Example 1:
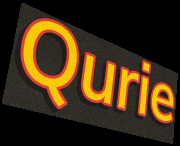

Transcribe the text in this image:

Qurie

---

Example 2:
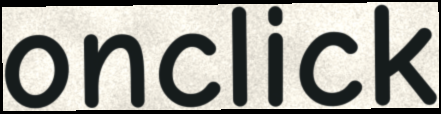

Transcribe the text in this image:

onclick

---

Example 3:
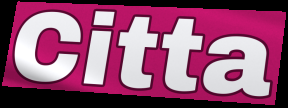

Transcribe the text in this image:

Citta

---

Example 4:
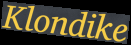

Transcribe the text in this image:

Klondike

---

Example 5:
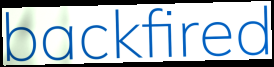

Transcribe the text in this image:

backfired